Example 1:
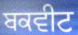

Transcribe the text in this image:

ਬਕਵੀਟ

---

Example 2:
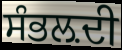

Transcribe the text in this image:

ਸੰਭਲ਼ਦੀ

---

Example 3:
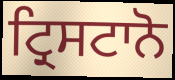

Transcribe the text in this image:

ਟ੍ਰਿਸਟਾਨੋ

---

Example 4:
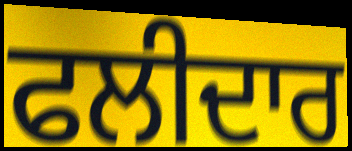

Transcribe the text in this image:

ਫਲੀਦਾਰ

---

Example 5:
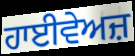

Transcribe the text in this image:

ਹਾਈਵੇਅਜ਼